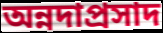
অন্নদাপ্রসাদ